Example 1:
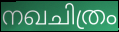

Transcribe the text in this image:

നഖചിത്രം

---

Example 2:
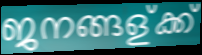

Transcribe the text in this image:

ജനങ്ങള്ക്ക്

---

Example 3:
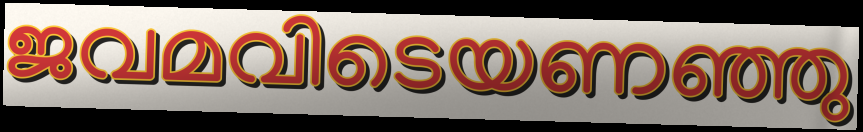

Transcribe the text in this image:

ജവമവിടെയണഞ്ഞു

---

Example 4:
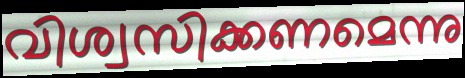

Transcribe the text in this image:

വിശ്വസിക്കണമെന്നു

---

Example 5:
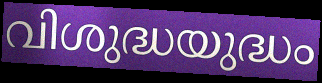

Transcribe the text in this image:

വിശുദ്ധയുദ്ധം